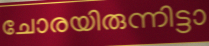
ചോരയിരുന്നിട്ടാ